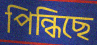
পিন্ধিছে